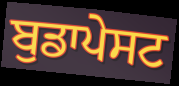
ਬੁਡਾਪੇਸਟ